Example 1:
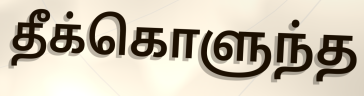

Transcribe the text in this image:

தீக்கொளுந்த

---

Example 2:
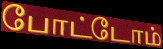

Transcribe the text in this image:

போட்டோம்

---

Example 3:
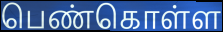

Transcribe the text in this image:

பெண்கொள்ள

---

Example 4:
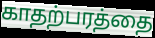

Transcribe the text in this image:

காதற்பரத்தை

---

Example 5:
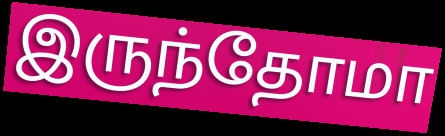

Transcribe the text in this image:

இருந்தோமா